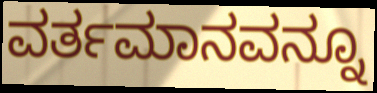
ವರ್ತಮಾನವನ್ನೂ